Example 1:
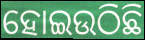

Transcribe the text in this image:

ହୋଇଉଠିଛି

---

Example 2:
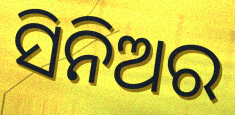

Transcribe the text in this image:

ସିନିଅର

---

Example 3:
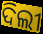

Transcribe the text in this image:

ଦିଲୀ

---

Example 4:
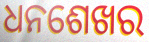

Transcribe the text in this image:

ଧନଶେଖର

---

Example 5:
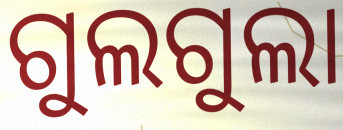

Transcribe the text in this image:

ଗୁଲଗୁଲା